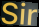
Sir